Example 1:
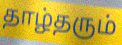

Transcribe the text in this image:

தாழ்தரும்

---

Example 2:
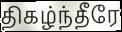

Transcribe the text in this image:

திகழ்ந்தீரே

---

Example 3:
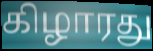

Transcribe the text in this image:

கிழாரது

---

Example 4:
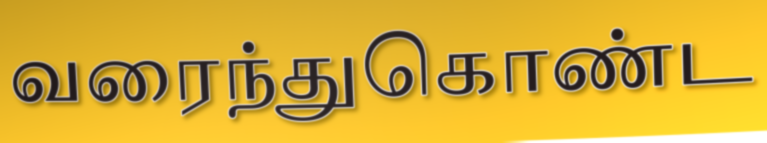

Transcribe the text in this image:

வரைந்துகொண்ட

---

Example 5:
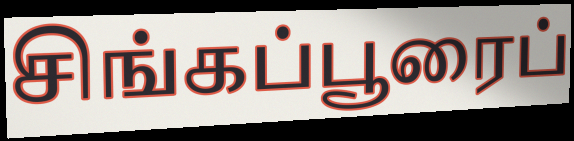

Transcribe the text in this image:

சிங்கப்பூரைப்